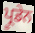
ਪ੍ਰੂਡੇਨ